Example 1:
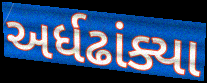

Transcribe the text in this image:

અર્ધઢાંક્યા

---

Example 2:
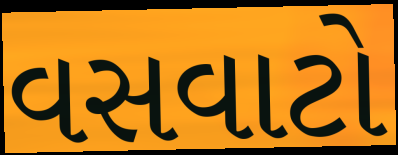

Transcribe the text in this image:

વસવાટો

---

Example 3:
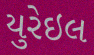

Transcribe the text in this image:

યુરેઇલ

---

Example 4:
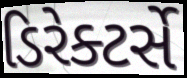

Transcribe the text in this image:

ડિરેક્ટર્સે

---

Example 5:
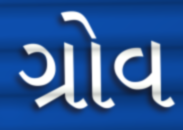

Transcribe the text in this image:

ગ્રોવ